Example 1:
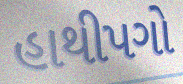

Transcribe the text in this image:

હાથીપગો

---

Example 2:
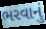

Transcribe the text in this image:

ભરવાનું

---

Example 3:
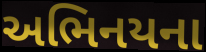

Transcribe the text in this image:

અભિનયના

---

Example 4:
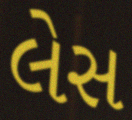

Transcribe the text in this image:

લેસ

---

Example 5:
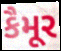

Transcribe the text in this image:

કૈમૂર